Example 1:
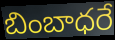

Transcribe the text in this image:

బింబాధరే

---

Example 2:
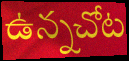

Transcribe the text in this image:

ఉన్నచోట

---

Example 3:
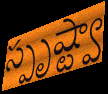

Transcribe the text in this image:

స్పృష్ట్వా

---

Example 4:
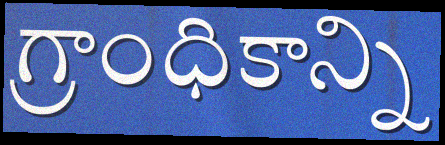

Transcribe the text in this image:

గ్రాంధికాన్ని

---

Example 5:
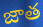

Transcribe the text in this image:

జాత